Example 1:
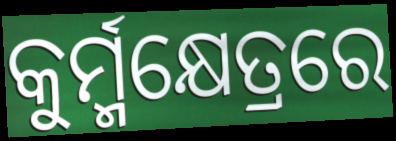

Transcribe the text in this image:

କୁର୍ମ୍ମକ୍ଷେତ୍ରରେ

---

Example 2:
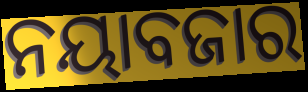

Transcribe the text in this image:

ନୟାବଜାର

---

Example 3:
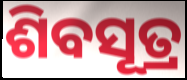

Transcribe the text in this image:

ଶିବସୂତ୍ର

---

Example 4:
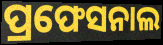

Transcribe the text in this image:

ପ୍ରଫେସନାଲ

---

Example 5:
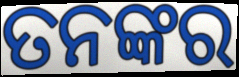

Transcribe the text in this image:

ତନଙ୍କର